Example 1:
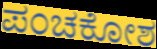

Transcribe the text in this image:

ಪಂಚಕೋಶ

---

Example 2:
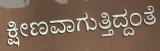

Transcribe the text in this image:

ಕ್ಷೀಣವಾಗುತ್ತಿದ್ದಂತೆ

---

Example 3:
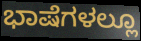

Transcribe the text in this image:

ಭಾಷೆಗಳಲ್ಲೂ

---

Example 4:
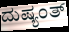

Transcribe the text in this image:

ದುಷ್ಯಂತ್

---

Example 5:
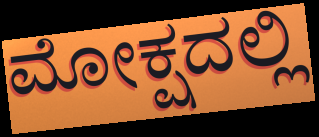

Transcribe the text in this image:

ಮೋಕ್ಷದಲ್ಲಿ